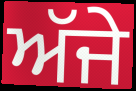
ਅੱਜੇ